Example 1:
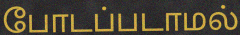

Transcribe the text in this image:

போடப்படாமல்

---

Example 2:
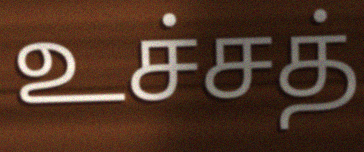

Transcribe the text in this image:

உச்சத்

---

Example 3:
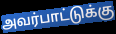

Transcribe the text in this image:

அவர்பாட்டுக்கு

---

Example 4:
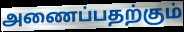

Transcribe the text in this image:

அணைப்பதற்கும்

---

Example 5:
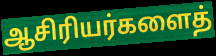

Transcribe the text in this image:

ஆசிரியர்களைத்